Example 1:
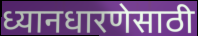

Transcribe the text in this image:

ध्यानधारणेसाठी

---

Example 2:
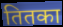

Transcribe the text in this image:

तितका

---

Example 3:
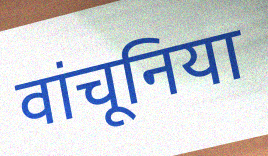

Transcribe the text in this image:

वांचूनिया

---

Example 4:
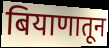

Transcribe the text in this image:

बियाणातून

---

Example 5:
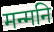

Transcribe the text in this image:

मन्मनि